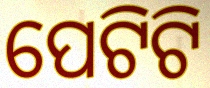
ପେଟିଟି